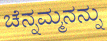
ಚೆನ್ನಮ್ಮನನ್ನು